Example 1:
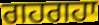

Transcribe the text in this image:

ਗਹਗਹਾ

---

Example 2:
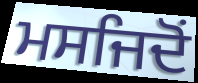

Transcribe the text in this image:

ਮਸਜਿਦੋਂ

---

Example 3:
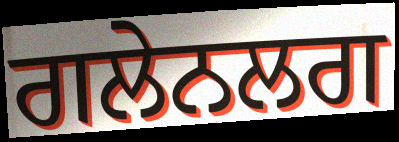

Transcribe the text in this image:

ਗਲੇਨਲਗ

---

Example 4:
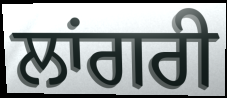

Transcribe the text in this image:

ਲਾਂਗਰੀ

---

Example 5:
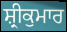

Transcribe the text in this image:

ਸ਼੍ਰੀਕੁਮਾਰ